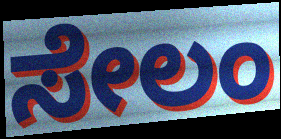
ಸೇಲಂ